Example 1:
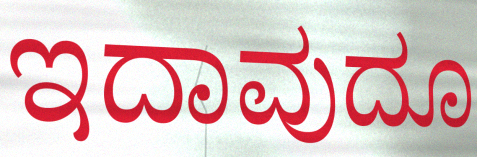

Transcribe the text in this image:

ಇದಾವುದೂ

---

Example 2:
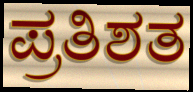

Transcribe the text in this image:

ಪ್ರತಿಶತ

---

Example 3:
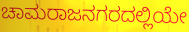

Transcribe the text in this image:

ಚಾಮರಾಜನಗರದಲ್ಲಿಯೇ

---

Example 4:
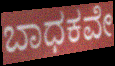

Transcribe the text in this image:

ಬಾಧಕವೇ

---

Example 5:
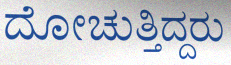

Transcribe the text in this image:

ದೋಚುತ್ತಿದ್ದರು